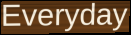
Everyday